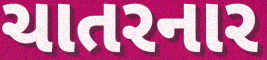
ચાતરનાર